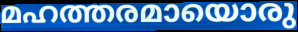
മഹത്തരമായൊരു